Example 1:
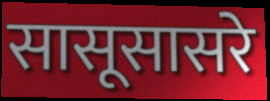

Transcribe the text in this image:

सासूसासरे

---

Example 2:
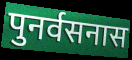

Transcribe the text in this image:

पुनर्वसनास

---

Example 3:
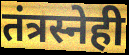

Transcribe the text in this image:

तंत्रस्नेही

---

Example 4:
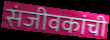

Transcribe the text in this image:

संजीवकांची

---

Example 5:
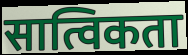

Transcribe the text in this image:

सात्विकता